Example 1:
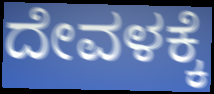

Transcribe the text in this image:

ದೇವಳಕ್ಕೆ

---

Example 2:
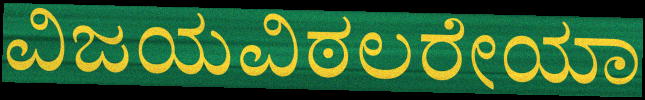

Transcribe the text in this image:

ವಿಜಯವಿಠಲರೇಯಾ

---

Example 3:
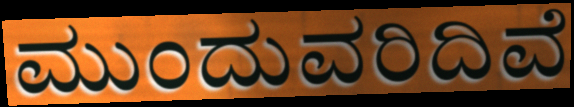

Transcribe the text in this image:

ಮುಂದುವರಿದಿವೆ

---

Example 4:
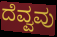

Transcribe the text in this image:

ದೆವ್ವವು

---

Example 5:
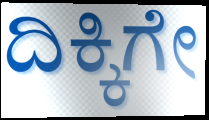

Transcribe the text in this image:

ದಿಕ್ಕಿಗೇ